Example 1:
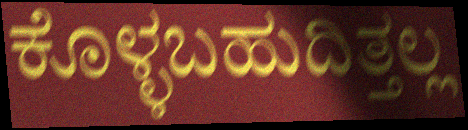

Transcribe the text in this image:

ಕೊಳ್ಳಬಹುದಿತ್ತಲ್ಲ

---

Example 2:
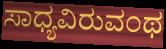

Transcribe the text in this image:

ಸಾಧ್ಯವಿರುವಂಥ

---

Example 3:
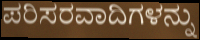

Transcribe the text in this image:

ಪರಿಸರವಾದಿಗಳನ್ನು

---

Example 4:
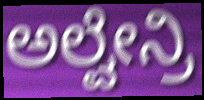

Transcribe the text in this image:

ಅಲ್ವೇನ್ರಿ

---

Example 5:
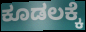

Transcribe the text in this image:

ಕೂಡಲಕ್ಕೆ